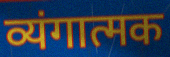
व्यंगात्मक